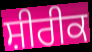
ਸ਼ੀਰੀਕ